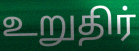
உறுதிர்